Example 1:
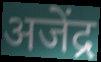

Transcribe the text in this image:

अजेंद्र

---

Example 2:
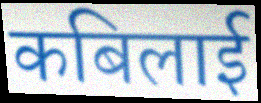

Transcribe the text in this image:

कबिलाई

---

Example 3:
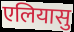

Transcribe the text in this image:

एलियासु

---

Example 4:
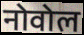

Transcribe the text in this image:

नोवोल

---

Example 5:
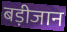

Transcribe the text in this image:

बड़ीजान